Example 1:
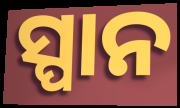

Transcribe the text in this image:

ସ୍ପାନ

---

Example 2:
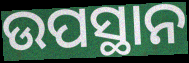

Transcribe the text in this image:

ଉପସ୍ଥାନ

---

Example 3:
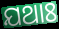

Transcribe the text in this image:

ଯଥାଃ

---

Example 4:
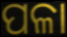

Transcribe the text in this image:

ପଳା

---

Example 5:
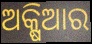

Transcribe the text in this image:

ଅକ୍ଷିଆର